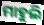
ମାହୁଲି